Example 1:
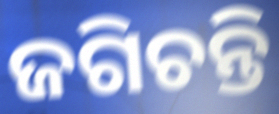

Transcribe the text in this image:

ଜଗିଚନ୍ତି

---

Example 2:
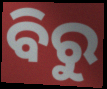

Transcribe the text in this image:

ବିରୁ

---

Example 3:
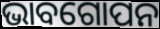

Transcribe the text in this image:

ଭାବଗୋପନ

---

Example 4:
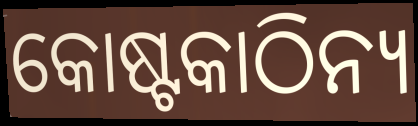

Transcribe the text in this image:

କୋଷ୍ଟକାଠିନ୍ୟ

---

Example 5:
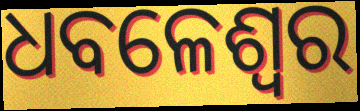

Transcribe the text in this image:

ଧବଳେଶ୍ଵର